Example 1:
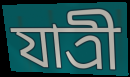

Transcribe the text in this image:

যাত্ৰী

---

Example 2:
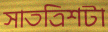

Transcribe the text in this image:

সাতত্ৰিশটা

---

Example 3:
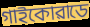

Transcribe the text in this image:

গাইকোৱাডে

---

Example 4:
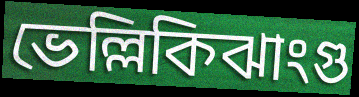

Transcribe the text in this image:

ভেল্লিকিঝাংগু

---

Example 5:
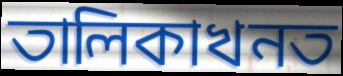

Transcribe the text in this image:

তালিকাখনত